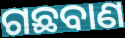
ଗଛବାଣ